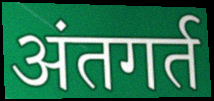
अंतगर्त